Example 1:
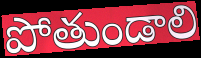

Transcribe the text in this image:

పోతుండాలి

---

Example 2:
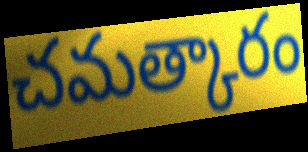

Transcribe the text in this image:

చమత్కారం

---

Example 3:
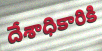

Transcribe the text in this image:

దేశాధికారికి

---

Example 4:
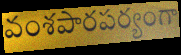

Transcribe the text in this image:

వంశపారపర్యంగా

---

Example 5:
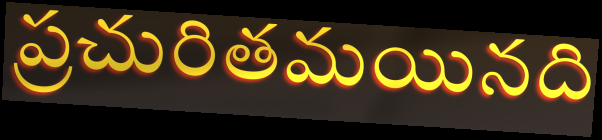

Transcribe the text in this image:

ప్రచురితమయినది